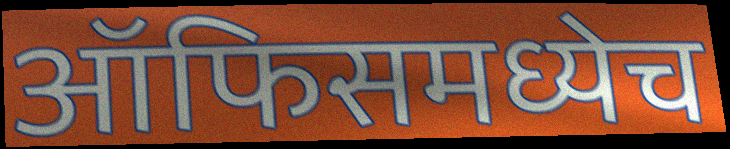
ऑफिसमध्येच